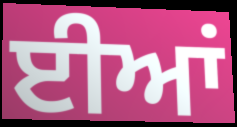
ਈਆਂ